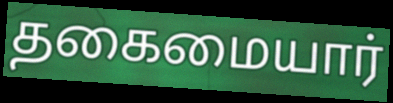
தகைமையார்